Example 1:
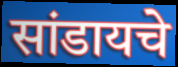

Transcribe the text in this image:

सांडायचे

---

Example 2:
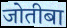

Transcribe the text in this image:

जोतीबा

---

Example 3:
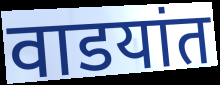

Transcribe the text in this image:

वाडयांत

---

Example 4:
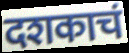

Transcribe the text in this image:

दशकाचं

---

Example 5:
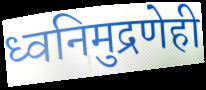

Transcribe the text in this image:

ध्वनिमुद्रणेही